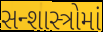
સન્શાસ્ત્રોમાં